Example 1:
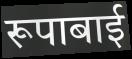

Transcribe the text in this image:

रूपाबाई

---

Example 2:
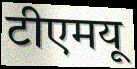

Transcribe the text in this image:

टीएमयू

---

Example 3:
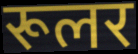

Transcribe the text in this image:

रूलर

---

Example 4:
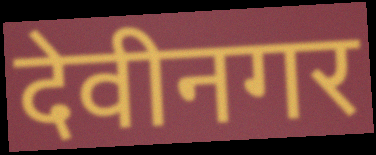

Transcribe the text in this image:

देवीनगर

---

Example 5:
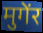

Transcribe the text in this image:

मुगेंर